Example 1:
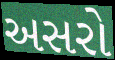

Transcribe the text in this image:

અસરો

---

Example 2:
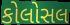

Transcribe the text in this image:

કોલોસલ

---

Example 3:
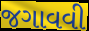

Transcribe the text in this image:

જગાવવી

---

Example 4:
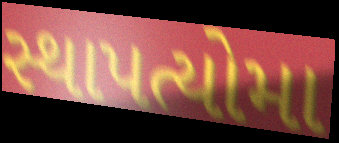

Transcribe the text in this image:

સ્થાપત્યોમા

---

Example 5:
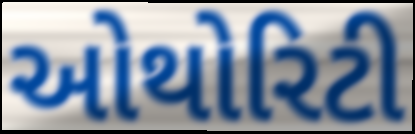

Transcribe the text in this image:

ઓથોરિટી